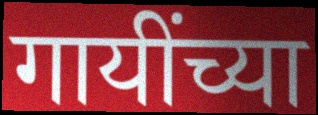
गायींच्या